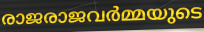
രാജരാജവർമ്മയുടെ